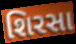
શિરસા